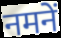
नमनें